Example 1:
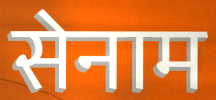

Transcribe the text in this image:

सेनाम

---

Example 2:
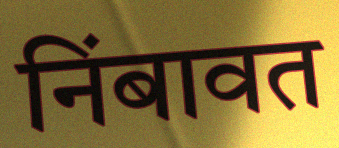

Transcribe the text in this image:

निंबावत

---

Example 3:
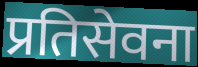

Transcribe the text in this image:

प्रतिसेवना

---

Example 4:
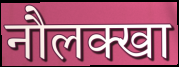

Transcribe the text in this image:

नौलक्खा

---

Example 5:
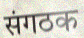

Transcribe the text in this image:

संगठक